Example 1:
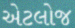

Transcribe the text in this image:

એટલોજ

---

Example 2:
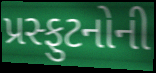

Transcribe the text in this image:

પ્રસ્ફુટનોની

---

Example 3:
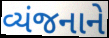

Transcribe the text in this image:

વ્યંજનાને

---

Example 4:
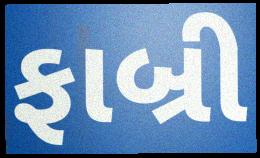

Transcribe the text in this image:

ફાબ્રી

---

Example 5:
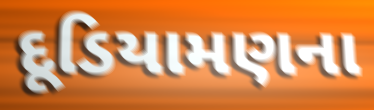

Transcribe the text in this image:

દૂડિયામણના